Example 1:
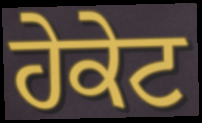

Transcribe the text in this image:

ਹੇਕੇਟ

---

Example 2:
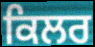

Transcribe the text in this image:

ਕਿਲਰ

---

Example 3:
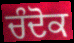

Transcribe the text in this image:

ਚੰਦੋਕ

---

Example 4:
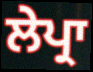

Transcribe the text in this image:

ਲੇਪ੍ਰਾ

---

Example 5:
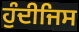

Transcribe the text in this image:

ਹੁੰਦੀਜਿਸ